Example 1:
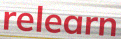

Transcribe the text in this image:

relearn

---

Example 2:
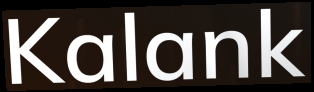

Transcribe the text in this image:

Kalank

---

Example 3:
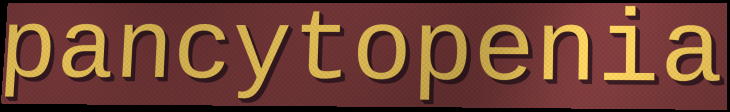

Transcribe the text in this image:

pancytopenia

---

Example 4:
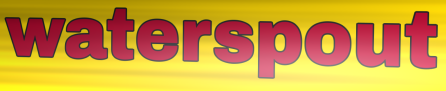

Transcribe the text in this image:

waterspout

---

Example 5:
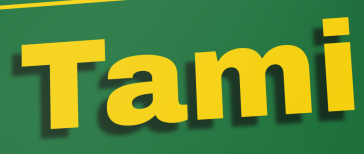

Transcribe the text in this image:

Tami